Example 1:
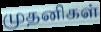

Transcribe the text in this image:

முதனிகள்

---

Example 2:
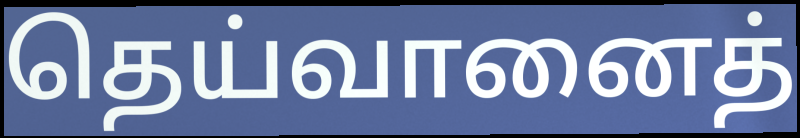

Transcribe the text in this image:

தெய்வானைத்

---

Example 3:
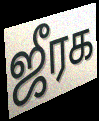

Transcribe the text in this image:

ஜீரக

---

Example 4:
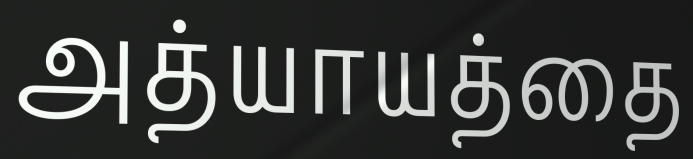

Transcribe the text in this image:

அத்யாயத்தை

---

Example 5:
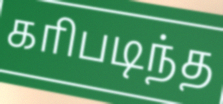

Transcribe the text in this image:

கரிபடிந்த